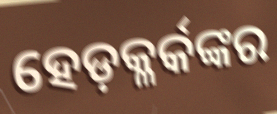
ହେଡ଼କ୍ଳର୍କଙ୍କର